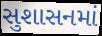
સુશાસનમાં